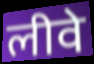
लीवे